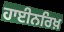
ਹਾਈਨਰਿਖ਼